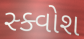
સ્ક્વોશ